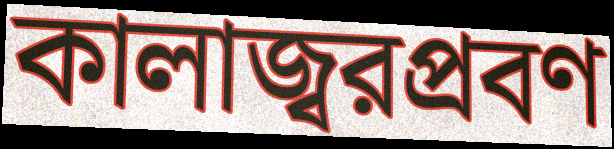
কালাজ্বরপ্রবণ